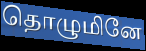
தொழுமினே